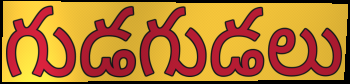
గుడగుడలు